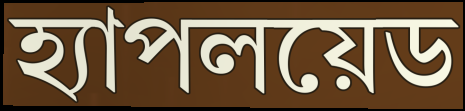
হ্যাপলয়েড